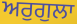
ਅਰੁਗੁਲਾ